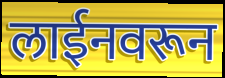
लाईनवरून